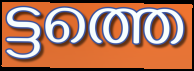
ട്ടത്തെ